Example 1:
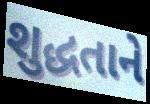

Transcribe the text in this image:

શુદ્ધતાને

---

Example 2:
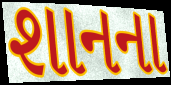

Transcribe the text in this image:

શાનના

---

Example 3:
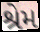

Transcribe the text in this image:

શ્રેમ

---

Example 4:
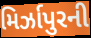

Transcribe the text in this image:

મિર્ઝાપુરની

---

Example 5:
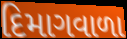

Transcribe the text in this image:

દિમાગવાળા